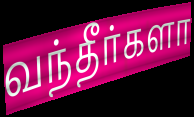
வந்தீர்களா